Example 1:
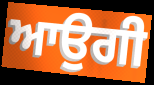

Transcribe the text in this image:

ਆਉਗੀ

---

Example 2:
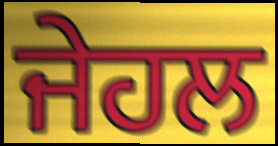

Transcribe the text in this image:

ਜੇਹਲ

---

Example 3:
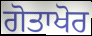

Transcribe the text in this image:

ਗੋਤਾਖੋਰ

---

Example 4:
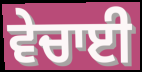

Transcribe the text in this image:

ਵੇਚਾਈ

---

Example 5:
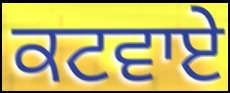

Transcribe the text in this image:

ਕਟਵਾਏ